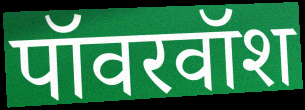
पॉवरवॉश